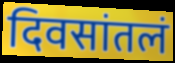
दिवसांतलं